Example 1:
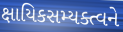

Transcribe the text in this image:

ક્ષાયિકસમ્યક્ત્વને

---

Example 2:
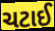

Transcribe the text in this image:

ચટાઈ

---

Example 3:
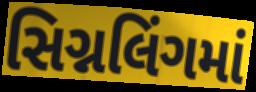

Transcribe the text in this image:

સિગ્નલિંગમાં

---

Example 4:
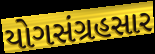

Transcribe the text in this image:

યોગસંગ્રહસાર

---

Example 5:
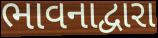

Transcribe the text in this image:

ભાવનાદ્વારા